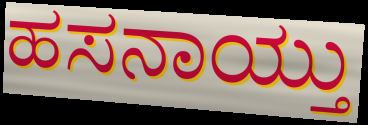
ಹಸನಾಯ್ತು